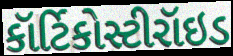
કૉર્ટિકોસ્ટીરૉઇડ